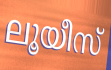
ലൂയീസ്